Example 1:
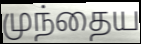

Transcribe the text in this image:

முந்தைய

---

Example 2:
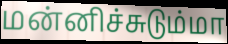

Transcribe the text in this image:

மன்னிச்சுடும்மா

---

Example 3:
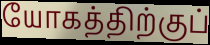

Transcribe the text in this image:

யோகத்திற்குப்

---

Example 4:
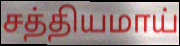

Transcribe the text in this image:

சத்தியமாய்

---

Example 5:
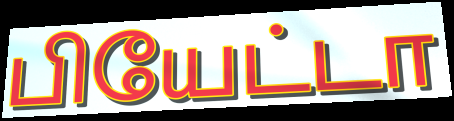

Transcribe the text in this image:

பியேட்டா